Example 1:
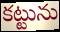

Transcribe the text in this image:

కట్టును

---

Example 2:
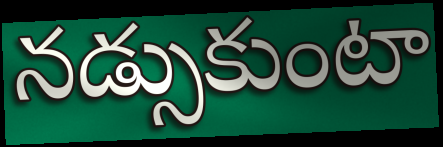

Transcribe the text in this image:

నడ్సుకుంటా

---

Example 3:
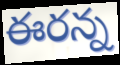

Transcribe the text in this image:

ఈరన్న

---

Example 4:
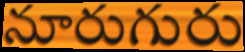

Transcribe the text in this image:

నూరుగురు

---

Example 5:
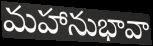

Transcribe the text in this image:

మహానుభావా